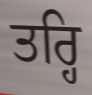
ਤਰ੍ਹਿ